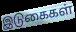
இடுகைகள்